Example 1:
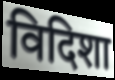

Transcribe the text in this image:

विदिशा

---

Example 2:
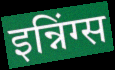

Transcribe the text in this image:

इन्निंग्स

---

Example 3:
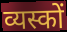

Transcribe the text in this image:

व्यस्कों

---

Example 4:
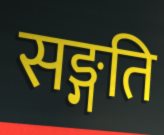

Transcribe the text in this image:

सङ्गति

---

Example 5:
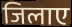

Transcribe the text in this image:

जिलाए